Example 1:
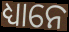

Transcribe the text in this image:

ଧ୍ୟାନେ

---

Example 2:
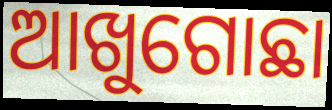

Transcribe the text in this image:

ଆଖୁଗୋଛା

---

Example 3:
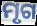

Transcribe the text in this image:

ମୃଗ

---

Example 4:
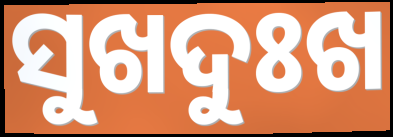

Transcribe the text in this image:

ସୁଖଦୁଃଖ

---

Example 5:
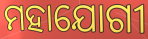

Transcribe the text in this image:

ମହାଯୋଗୀ